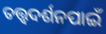
ତତ୍ତ୍ଵଦର୍ଶନପାଇଁ